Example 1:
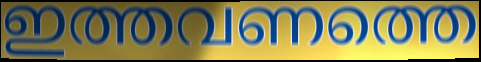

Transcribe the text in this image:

ഇത്തവണത്തെ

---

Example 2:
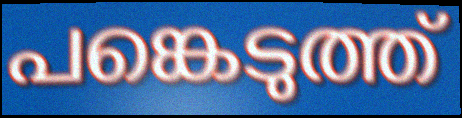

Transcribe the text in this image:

പങ്കെടുത്ത്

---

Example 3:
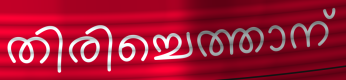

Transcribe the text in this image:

തിരിച്ചെത്താന്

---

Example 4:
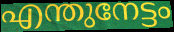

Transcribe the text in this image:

എന്തുനേട്ടം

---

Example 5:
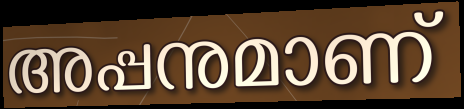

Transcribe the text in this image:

അപ്പനുമാണ്